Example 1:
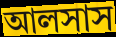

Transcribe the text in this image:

আলসাস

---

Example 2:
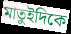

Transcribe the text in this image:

মাতুইদিকে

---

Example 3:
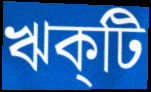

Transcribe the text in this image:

ঋক্‌টি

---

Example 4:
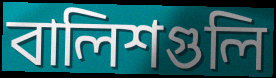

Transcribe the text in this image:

বালিশগুলি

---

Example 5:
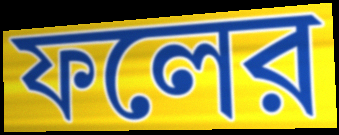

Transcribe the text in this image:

ফলের